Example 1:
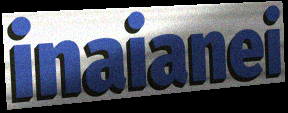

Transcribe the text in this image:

inaianei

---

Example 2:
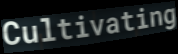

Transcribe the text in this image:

Cultivating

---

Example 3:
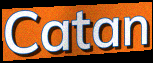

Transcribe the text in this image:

Catan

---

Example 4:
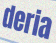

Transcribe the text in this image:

deria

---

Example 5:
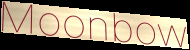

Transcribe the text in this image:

Moonbow